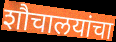
शौचालयांचा